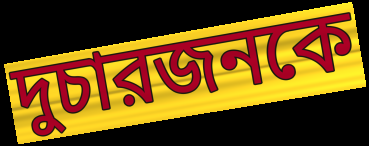
দুচারজনকে